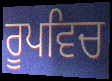
ਰੂਪਵਿਚ